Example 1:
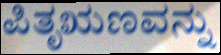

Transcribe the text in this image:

ಪಿತೃಋಣವನ್ನು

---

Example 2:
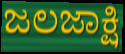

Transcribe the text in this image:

ಜಲಜಾಕ್ಷಿ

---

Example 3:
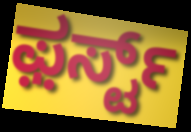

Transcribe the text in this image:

ಫ಼ರ್ಸ್ಟ್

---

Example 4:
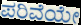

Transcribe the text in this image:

ಪರಿವೆಯೇ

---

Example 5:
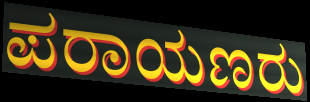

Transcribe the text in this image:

ಪರಾಯಣರು